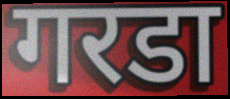
गरडा